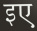
इए